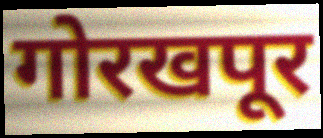
गोरखपूर